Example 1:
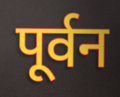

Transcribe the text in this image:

पूर्वन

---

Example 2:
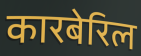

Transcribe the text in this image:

कारबेरिल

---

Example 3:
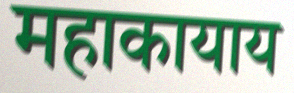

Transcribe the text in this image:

महाकायाय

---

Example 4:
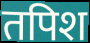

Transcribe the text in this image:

तपिश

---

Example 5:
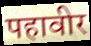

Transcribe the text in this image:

पहावीर